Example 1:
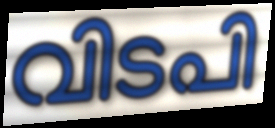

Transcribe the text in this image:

വിടപി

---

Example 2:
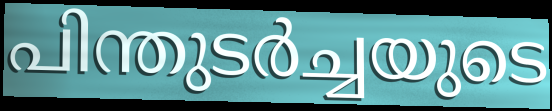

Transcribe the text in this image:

പിന്തുടർച്ചയുടെ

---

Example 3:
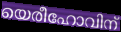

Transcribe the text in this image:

യെരീഹോവിന്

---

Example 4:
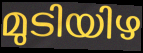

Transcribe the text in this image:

മുടിയിഴ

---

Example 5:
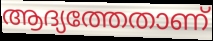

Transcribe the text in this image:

ആദ്യത്തേതാണ്